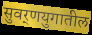
सुवर्णयुगातील